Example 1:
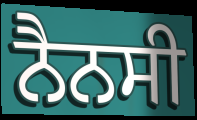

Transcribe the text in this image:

ਨੈਨਸੀ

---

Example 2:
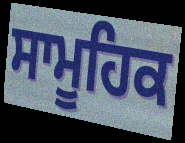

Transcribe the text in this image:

ਸਾਮੂਹਿਕ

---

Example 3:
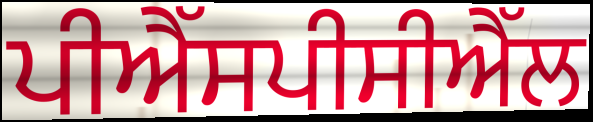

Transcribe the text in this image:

ਪੀਐੱਸਪੀਸੀਐੱਲ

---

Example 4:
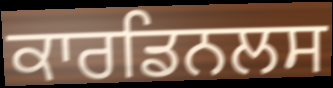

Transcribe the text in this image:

ਕਾਰਡਿਨਲਸ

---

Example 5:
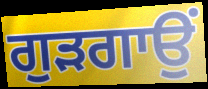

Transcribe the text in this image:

ਗੁੜਗਾਉਂ